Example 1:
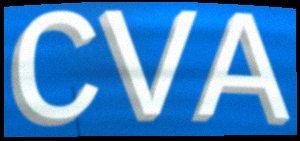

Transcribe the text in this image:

CVA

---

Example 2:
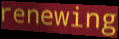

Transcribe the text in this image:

renewing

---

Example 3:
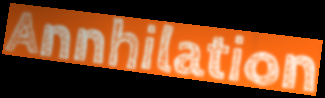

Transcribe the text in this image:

Annhilation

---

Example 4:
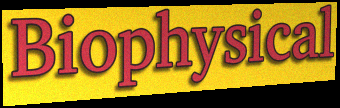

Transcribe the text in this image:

Biophysical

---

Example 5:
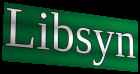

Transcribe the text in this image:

Libsyn